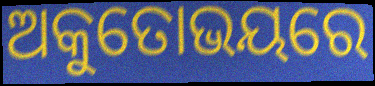
ଅକୁତୋଭୟରେ